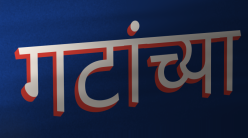
गटांच्या